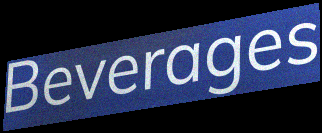
Beverages